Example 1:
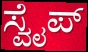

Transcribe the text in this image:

ಸ್ವೈಪ್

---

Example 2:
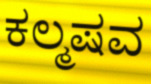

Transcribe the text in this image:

ಕಲ್ಮಷವ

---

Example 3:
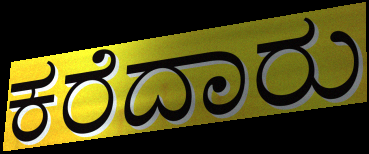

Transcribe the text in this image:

ಕರೆದಾರು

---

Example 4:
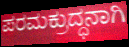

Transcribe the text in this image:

ಪರಮಕ್ರುದ್ಧನಾಗಿ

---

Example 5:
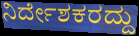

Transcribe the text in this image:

ನಿರ್ದೇಶಕರದ್ದು